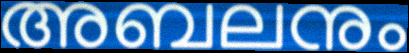
അബലനും